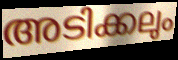
അടിക്കലും